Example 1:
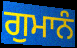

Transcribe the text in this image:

ਗੁਮਾਨੰ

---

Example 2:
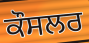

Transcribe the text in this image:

ਕੌਸਲਰ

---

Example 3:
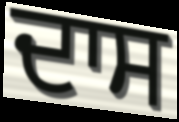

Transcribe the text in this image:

ਦਾਸ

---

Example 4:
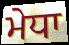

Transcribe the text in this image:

ਮੇਧਾ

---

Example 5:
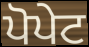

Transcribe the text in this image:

ਪੋਪੇਟ